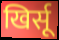
खिर्सू